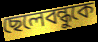
ছেলেবন্ধুকে